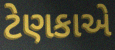
ટેણકાએ